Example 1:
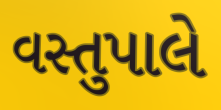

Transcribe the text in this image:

વસ્તુપાલે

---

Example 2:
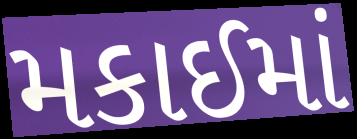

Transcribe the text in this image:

મકાઈમાં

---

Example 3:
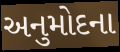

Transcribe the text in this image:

અનુમોદના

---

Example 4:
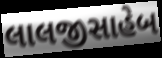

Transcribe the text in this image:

લાલજીસાહેબ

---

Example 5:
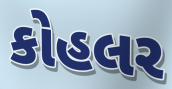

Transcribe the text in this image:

કોહલર